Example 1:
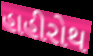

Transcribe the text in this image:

હાહીરોથ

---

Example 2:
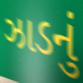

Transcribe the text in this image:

ઝાડનું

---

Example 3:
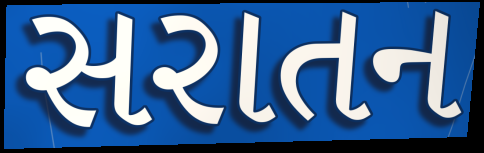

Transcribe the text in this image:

સરાતન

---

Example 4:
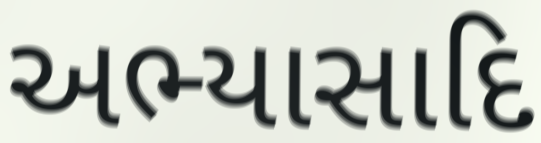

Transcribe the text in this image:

અભ્યાસાદિ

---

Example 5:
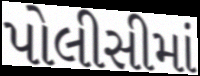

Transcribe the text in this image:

પોલીસીમાં